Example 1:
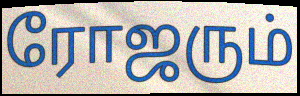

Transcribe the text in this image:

ரோஜரும்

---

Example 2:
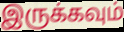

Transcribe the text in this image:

இருக்கவும்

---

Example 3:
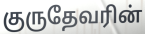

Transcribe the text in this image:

குருதேவரின்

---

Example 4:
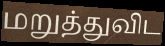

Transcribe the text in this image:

மறுத்துவிட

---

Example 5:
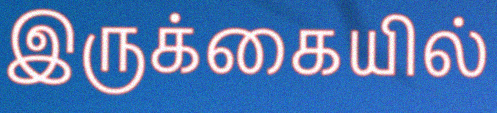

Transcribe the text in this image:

இருக்கையில்